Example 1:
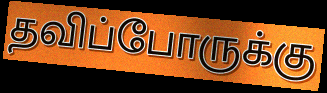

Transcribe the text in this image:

தவிப்போருக்கு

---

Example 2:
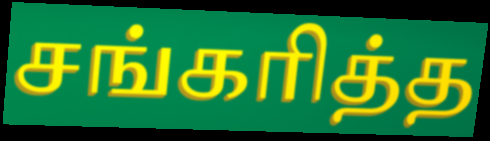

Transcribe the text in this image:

சங்கரித்த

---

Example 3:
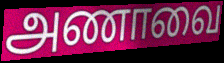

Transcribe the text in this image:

அணாவை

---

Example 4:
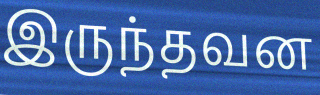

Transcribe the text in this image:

இருந்தவன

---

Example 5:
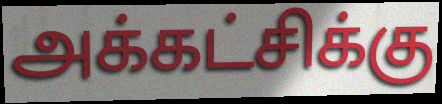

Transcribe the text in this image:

அக்கட்சிக்கு